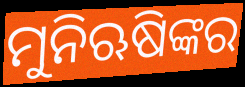
ମୁନିଋଷିଙ୍କର